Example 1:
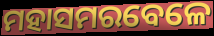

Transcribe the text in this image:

ମହାସମରବେଳେ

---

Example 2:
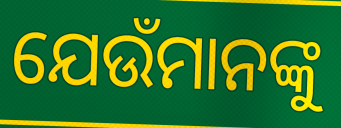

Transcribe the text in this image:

ଯେଉଁମାନଙ୍କୁ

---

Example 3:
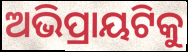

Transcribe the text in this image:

ଅଭିପ୍ରାୟଟିକୁ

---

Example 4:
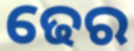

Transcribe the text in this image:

ଢେର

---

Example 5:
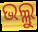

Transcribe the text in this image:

ଭଲ୍ଲୁ